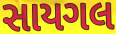
સાયગલ